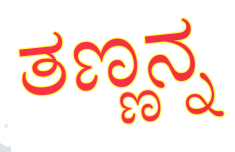
ತಣ್ಣನ್ನ